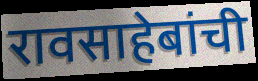
रावसाहेबांची